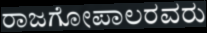
ರಾಜಗೋಪಾಲರವರು